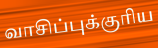
வாசிப்புக்குரிய